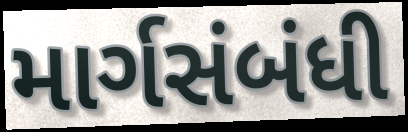
માર્ગસંબંધી